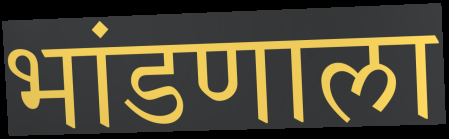
भांडणाला